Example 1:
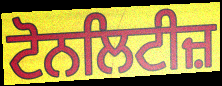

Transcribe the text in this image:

ਟੋਨਲਿਟੀਜ਼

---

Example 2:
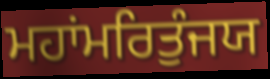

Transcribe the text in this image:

ਮਹਾਂਮਰਿਤੁੰਜਯ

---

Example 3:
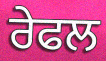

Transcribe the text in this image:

ਰੇਫਲ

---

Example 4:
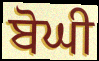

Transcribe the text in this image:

ਬੋਘੀ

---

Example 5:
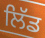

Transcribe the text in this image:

ਲਿੱਡ